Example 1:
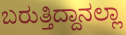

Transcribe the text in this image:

ಬರುತ್ತಿದ್ದಾನಲ್ಲಾ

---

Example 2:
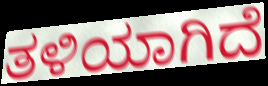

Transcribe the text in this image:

ತಳಿಯಾಗಿದೆ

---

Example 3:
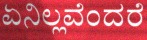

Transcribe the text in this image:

ಏನಿಲ್ಲವೆಂದರೆ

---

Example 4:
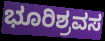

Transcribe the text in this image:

ಭೂರಿಶ್ರವಸ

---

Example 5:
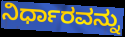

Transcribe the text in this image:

ನಿರ್ಧಾರವನ್ನು